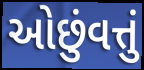
ઓછુંવત્તું